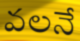
వలనే